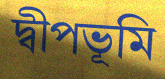
দ্বীপভূমি